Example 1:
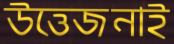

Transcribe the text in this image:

উত্তেজনাই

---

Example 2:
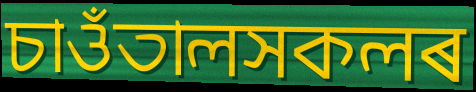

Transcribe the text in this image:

চাওঁতালসকলৰ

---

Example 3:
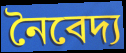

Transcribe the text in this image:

নৈবেদ্য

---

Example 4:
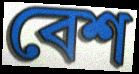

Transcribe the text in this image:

বেশ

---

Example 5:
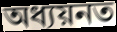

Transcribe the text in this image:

অধ্য়য়নত